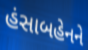
હંસાબહેનને